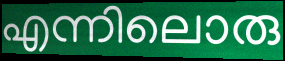
എന്നിലൊരു